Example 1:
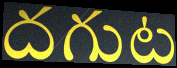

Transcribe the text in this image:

దగుట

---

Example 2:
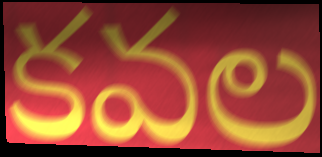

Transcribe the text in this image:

కవల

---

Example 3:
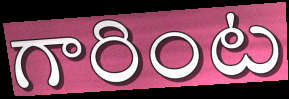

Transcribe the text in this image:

గారింట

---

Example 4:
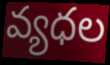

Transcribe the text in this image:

వ్యధల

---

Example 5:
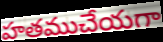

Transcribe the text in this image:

హతముచేయగా